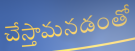
చేస్తామనడంతో